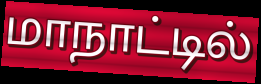
மாநாட்டில்